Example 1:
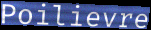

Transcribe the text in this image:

Poilievre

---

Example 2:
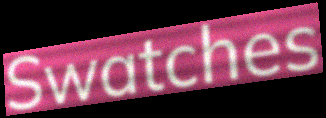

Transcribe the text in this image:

Swatches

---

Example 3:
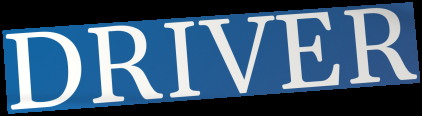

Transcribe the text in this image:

DRIVER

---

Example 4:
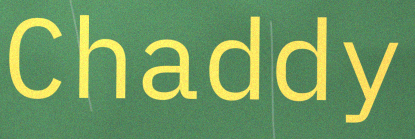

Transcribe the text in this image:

Chaddy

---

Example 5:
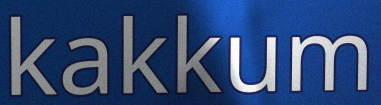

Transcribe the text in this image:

kakkum